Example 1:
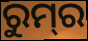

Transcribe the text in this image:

ରୁମ୍‌ର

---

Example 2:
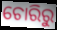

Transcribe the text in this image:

ଚୋରିରୁ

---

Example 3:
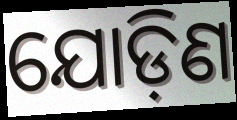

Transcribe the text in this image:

ଯୋଡ଼ିଣ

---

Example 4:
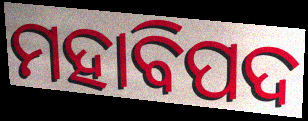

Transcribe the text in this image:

ମହାବିପଦ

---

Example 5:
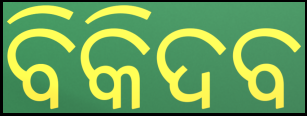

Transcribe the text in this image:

ବିକିଦବ